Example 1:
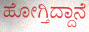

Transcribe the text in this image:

ಹೋಗ್ತಿದ್ದಾನೆ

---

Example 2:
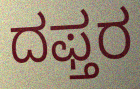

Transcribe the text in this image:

ದಫ್ತರ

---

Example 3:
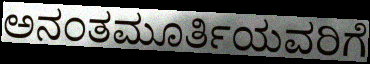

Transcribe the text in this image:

ಅನಂತಮೂರ್ತಿಯವರಿಗೆ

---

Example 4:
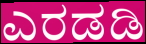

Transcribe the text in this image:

ಎರಡಡಿ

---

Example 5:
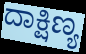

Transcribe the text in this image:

ದಾಕ್ಷಿಣ್ಯ